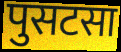
पुसटसा